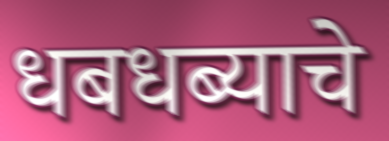
धबधब्याचे